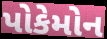
પોકેમોન